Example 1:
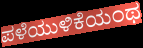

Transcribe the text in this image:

ಪಳೆಯುಳಿಕೆಯಂಥ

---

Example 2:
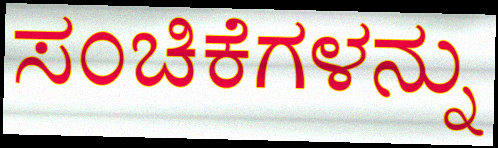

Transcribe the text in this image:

ಸಂಚಿಕೆಗಳನ್ನು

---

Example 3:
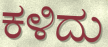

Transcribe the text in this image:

ಕಳಿದು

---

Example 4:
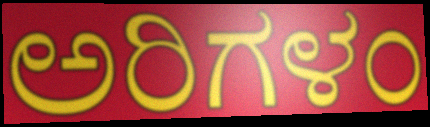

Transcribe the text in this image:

ಅರಿಗಳಂ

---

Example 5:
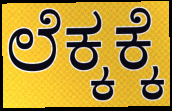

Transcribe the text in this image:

ಲೆಕ್ಕಕ್ಕೆ